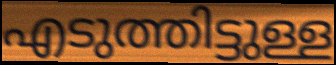
എടുത്തിട്ടുള്ള